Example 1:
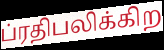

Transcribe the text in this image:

ப்ரதிபலிக்கிற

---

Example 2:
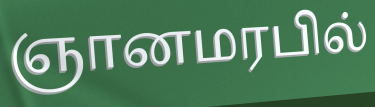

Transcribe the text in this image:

ஞானமரபில்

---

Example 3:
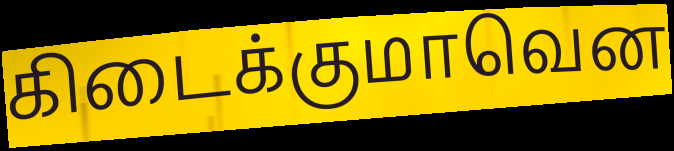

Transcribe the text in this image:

கிடைக்குமாவென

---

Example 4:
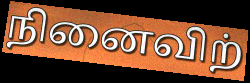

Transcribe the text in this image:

நினைவிற்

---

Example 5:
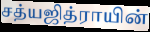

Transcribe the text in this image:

சத்யஜித்ராயின்